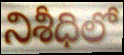
నిశీధిలో